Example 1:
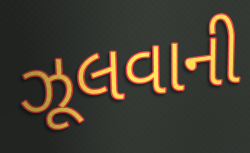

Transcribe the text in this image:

ઝૂલવાની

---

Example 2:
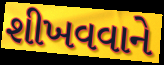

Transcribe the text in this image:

શીખવવાને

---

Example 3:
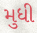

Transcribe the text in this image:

મુધી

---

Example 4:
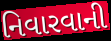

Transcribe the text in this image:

નિવારવાની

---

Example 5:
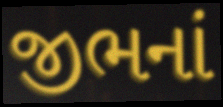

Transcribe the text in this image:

જીભનાં